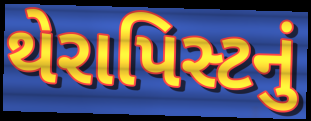
થેરાપિસ્ટનું